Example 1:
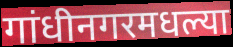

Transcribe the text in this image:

गांधीनगरमधल्या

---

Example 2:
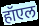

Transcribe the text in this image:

हॉएल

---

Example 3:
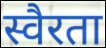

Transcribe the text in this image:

स्वैरता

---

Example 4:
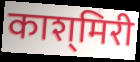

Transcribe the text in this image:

काश्मिरी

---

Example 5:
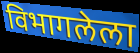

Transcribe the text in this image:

विभागलेला